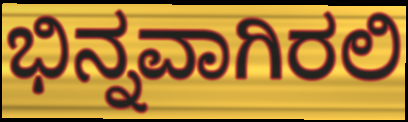
ಭಿನ್ನವಾಗಿರಲಿ